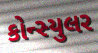
કોન્સ્યુલર